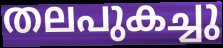
തലപുകച്ചു